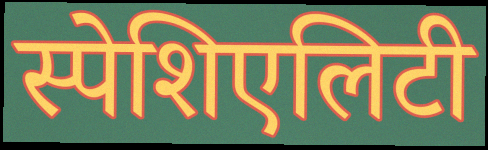
स्पेशिएलिटी